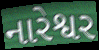
નારેશ્વર